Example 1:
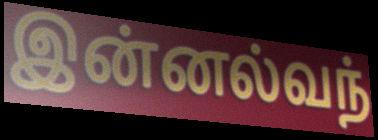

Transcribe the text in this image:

இன்னல்வந்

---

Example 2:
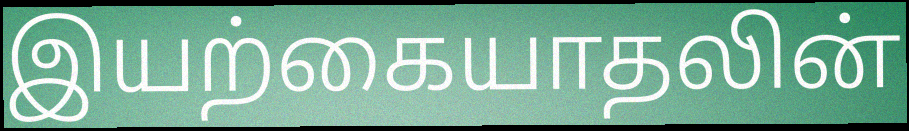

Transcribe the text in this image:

இயற்கையாதலின்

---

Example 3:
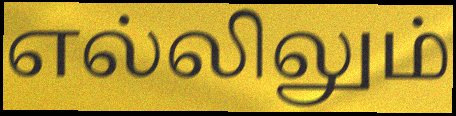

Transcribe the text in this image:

எல்லிலும்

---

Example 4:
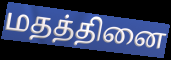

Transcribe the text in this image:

மதத்தினை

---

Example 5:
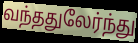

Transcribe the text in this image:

வந்ததுலேர்ந்து